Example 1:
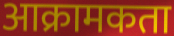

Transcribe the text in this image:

आक्रामकता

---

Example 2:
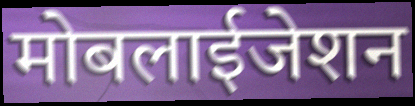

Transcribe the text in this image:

मोबलाईजेशन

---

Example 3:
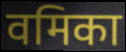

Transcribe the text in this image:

वमिका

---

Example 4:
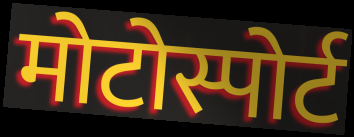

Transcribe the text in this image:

मोटोस्पोर्ट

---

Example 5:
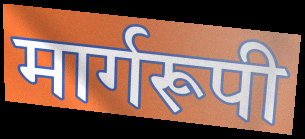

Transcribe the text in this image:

मार्गरूपी